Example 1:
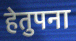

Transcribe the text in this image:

हेतुपना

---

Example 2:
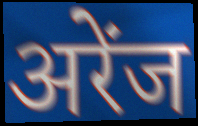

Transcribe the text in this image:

अरेंज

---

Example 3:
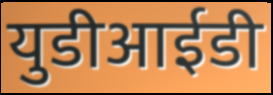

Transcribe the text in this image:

युडीआईडी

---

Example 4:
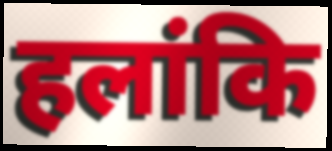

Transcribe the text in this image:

हलांकि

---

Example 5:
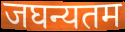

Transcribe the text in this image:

जघन्यतम